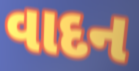
વાદન